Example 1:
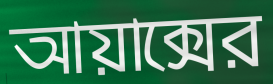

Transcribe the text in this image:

আয়াক্সের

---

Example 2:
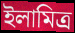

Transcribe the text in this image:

ইলামিত্র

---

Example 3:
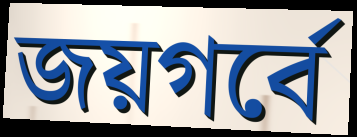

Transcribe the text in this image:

জয়গর্বে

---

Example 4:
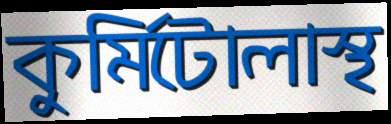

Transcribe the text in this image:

কুর্মিটোলাস্থ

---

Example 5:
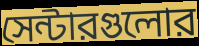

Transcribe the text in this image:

সেন্টারগুলোর